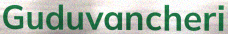
Guduvancheri